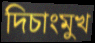
দিচাংমুখ